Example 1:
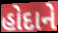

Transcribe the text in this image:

હોદાને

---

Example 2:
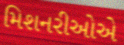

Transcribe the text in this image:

મિશનરીઓએ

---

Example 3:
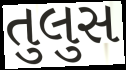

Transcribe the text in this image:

તુલુસ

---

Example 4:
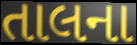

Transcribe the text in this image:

તાલના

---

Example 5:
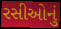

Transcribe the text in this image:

રસીઓનું